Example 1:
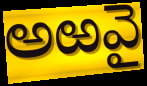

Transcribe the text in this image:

అఱవై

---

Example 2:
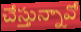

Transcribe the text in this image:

చేస్తున్నావో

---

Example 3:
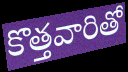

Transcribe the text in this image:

కొత్తవారితో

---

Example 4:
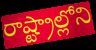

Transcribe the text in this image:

రాష్ట్రాల్లోని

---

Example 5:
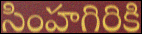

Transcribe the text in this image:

సింహగిరికి